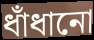
ধাঁধানো